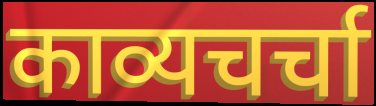
काव्यचर्चा